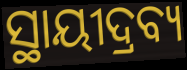
ସ୍ଥାୟୀଦ୍ରବ୍ୟ